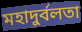
মহাদুর্বলতা